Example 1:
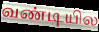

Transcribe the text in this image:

வண்டியில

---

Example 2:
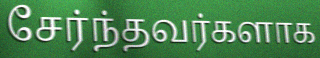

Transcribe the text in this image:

சேர்ந்தவர்களாக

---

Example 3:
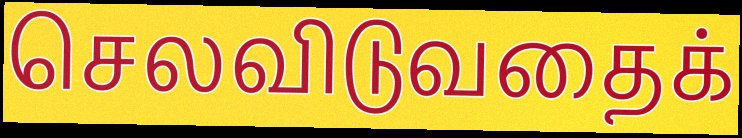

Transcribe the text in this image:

செலவிடுவதைக்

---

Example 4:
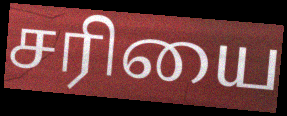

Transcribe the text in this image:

சரியை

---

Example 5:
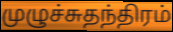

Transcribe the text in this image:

முழுச்சுதந்திரம்